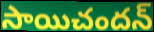
సాయిచందన్